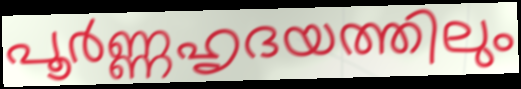
പൂർണ്ണഹൃദയത്തിലും